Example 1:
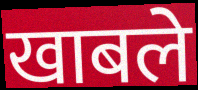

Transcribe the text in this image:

खाबले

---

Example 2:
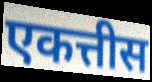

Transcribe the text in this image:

एकत्तीस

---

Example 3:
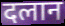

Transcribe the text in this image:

दलान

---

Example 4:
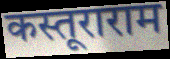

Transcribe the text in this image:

कस्तूराराम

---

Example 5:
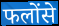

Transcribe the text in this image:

फलोंसे